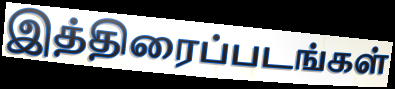
இத்திரைப்படங்கள்